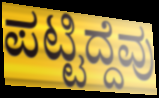
ಪಟ್ಟಿದ್ದೆವು